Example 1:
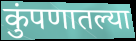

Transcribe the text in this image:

कुंपणातल्या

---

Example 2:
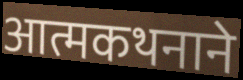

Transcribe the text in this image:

आत्मकथनाने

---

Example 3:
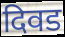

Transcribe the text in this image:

दिवड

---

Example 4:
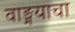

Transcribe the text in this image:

वाङ्मयाचा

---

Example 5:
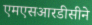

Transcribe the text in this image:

एमएसआरडीसीने